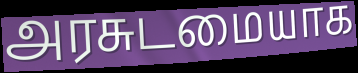
அரசுடமையாக